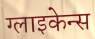
ग्लाइकेन्स